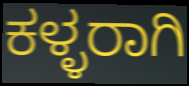
ಕಳ್ಳರಾಗಿ